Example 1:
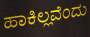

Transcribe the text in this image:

ಹಾಕಿಲ್ಲವೆಂದು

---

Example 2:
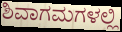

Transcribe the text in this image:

ಶಿವಾಗಮಗಳಲ್ಲಿ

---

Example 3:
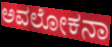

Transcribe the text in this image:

ಅವಲೋಕನಾ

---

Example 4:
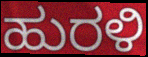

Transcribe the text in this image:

ಹುರಳಿ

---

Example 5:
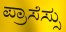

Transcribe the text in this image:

ಪ್ರಾಸೆಸ್ಸು